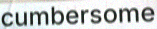
cumbersome